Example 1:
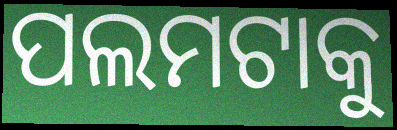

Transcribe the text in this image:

ପଲମଟାକୁ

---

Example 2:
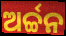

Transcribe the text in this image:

ଅର୍ଚ୍ଚନ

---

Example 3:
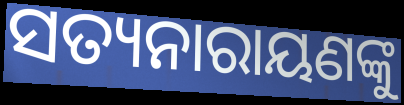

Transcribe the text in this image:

ସତ୍ୟନାରାୟଣଙ୍କୁ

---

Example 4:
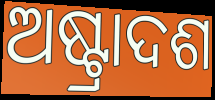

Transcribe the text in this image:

ଅଷ୍ଟ୍ରାଦଶ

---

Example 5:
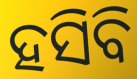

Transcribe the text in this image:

ହସିବି